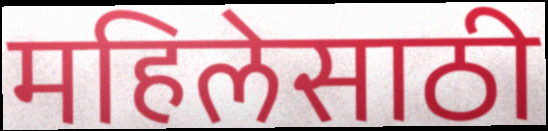
महिलेसाठी